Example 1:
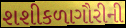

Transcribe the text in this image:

શશીકળાગૌરીની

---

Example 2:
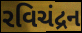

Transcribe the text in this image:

રવિચંદ્રન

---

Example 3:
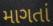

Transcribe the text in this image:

માગતાં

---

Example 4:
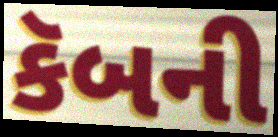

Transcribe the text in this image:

કૅબની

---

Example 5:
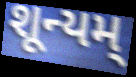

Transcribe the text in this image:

શૂન્યમ્